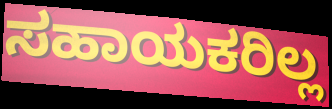
ಸಹಾಯಕರಿಲ್ಲ